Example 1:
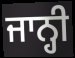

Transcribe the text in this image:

ਜਾਨ੍ਹੀ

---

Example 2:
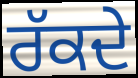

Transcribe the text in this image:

ਰੱਕਦੇ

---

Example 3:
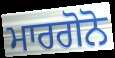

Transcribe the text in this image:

ਮਾਰਗੋਨੋ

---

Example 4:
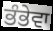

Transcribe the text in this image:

ਭੰਭੇਵਾ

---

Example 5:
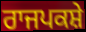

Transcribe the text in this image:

ਰਾਜਪਕਸ਼ੇ